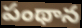
పంథాన